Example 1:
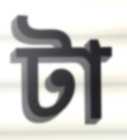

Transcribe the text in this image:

টা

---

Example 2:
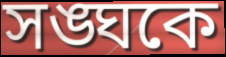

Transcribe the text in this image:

সঙ্ঘকে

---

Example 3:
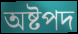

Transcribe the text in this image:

অষ্টপদ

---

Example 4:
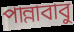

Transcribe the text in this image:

পান্নাবাবু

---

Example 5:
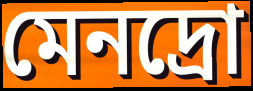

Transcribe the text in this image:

মেনদ্রো